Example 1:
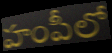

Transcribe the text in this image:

హంపీలో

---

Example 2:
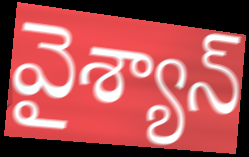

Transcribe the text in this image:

వైశ్యాన్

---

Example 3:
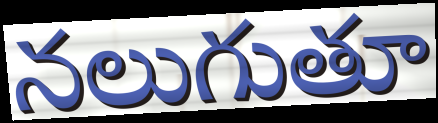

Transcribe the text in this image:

నలుగుతూ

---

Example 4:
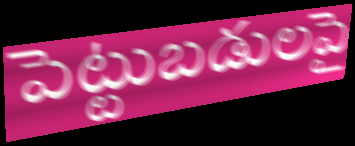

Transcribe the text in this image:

పెట్టుబడులపై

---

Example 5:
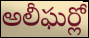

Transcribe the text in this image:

అలీఘర్లో